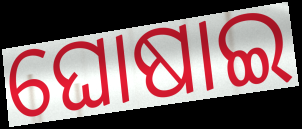
ଘୋଷାଇ